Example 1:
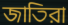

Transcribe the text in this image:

জাতিরা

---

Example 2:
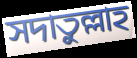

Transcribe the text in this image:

সদাতুল্লাহ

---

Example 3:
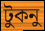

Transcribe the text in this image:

টুকনু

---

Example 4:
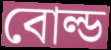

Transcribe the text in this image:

বোল্ড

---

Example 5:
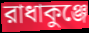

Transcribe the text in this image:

রাধাকুঞ্জে